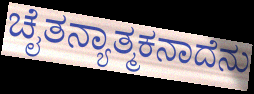
ಚೈತನ್ಯಾತ್ಮಕನಾದೆನು